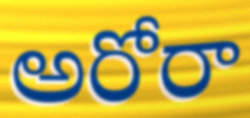
అరోరా